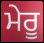
ਮੇਰੂ